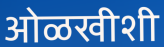
ओळखीशी